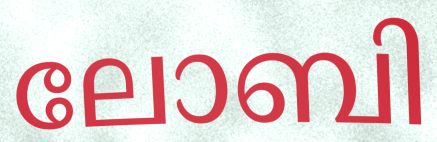
ലോബി